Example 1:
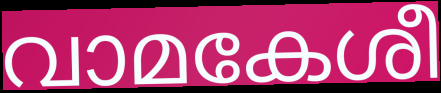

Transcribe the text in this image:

വാമകേശീ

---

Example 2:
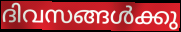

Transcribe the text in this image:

ദിവസങ്ങൾക്കു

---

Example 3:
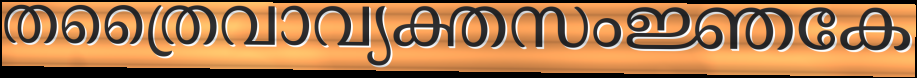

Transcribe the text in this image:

തത്രൈവാവ്യക്തസംജ്ഞകേ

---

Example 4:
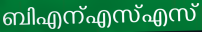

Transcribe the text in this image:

ബിഎന്എസ്എസ്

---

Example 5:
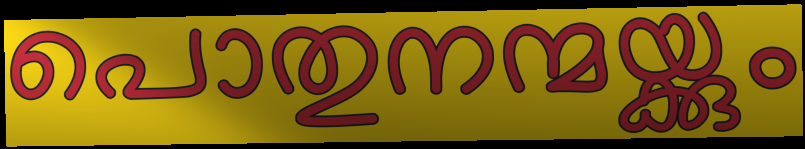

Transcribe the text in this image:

പൊതുനന്മയ്ക്കും